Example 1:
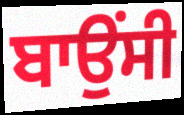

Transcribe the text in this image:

ਬਾਉਂਸੀ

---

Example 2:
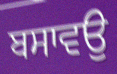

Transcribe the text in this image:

ਬਸਾਵਉ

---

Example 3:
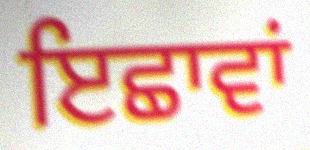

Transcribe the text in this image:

ਇਛਾਵਾਂ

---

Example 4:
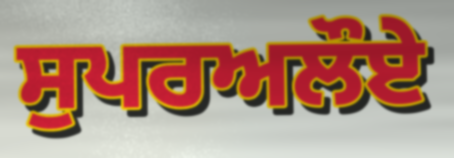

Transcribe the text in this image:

ਸੁਪਰਅਲੌਏ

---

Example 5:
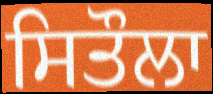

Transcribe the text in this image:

ਸਿਤੌਲਾ